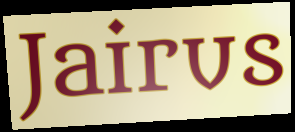
Jairus